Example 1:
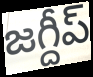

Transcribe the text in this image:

జగ్దీప్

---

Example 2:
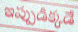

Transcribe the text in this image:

ఇప్పుడిక్కడే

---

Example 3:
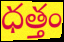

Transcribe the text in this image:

ధత్తం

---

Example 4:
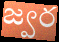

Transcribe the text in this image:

జ్వర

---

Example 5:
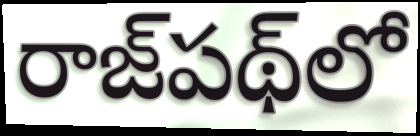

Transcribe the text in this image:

రాజ్‌పథ్‌లో